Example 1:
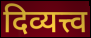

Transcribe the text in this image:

दिव्यत्त्व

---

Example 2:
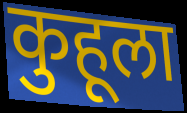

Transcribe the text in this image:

कुहूला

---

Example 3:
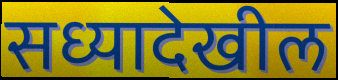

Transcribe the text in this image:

सध्यादेखील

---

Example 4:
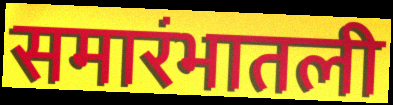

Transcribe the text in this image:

समारंभातली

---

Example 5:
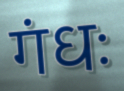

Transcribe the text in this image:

गंधः